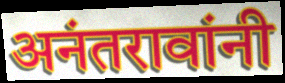
अनंतरावांनी